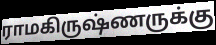
ராமகிருஷ்ணருக்கு